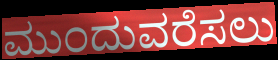
ಮುಂದುವರೆಸಲು